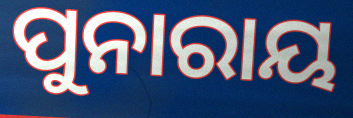
ପୁନାରାୟ